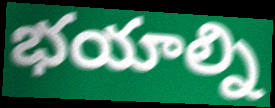
భయాల్ని